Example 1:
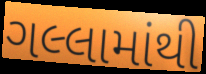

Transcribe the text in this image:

ગલ્લામાંથી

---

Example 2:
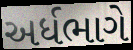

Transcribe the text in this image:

અર્ધભાગે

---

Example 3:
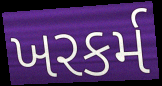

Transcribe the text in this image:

ખરકર્મ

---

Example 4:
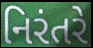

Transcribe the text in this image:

નિરંતરે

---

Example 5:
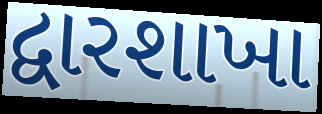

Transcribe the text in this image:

દ્વારશાખા